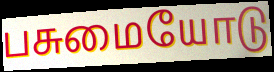
பசுமையோடு